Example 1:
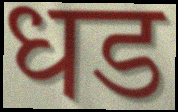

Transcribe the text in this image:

धड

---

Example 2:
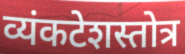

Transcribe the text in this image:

व्यंकटेशस्तोत्र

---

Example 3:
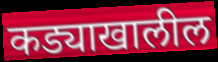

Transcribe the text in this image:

कड्याखालील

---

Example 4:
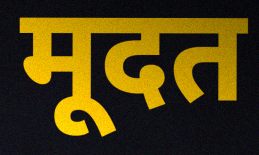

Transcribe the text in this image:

मूदत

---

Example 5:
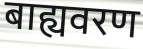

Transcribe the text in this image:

बाह्यवरण